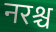
नरश्च